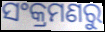
ସଂକ୍ରମଣରୁ